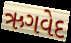
ઋગવેદ